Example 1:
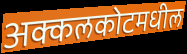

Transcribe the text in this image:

अक्कलकोटमधील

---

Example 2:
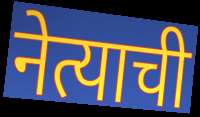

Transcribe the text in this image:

नेत्याची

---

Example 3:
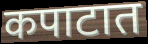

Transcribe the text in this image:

कपाटात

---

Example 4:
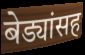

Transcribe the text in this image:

बेड्यांसह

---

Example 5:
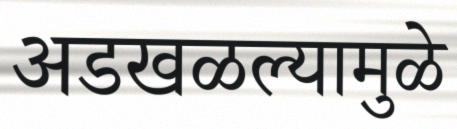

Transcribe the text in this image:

अडखळल्यामुळे